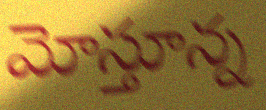
మోస్తూన్న